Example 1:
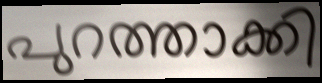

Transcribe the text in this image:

പുറത്താക്കി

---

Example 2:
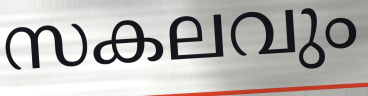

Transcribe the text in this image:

സകലവും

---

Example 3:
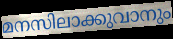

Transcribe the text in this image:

മനസിലാക്കുവാനും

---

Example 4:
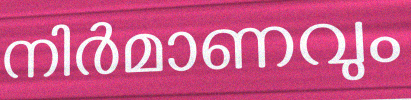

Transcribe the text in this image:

നിർമാണവും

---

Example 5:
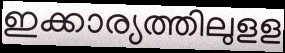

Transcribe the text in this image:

ഇക്കാര്യത്തിലുളള